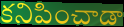
కనిపించాడా